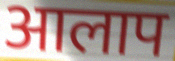
आलाप